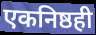
एकनिष्ठही